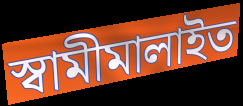
স্বামীমালাইত